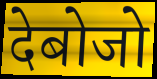
देबोजो